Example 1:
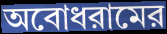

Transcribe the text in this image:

অবোধরামের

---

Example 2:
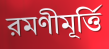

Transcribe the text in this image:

রমণীমূর্ত্তি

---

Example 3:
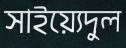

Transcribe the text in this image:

সাইয়্যেদুল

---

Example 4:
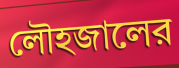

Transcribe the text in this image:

লৌহজালের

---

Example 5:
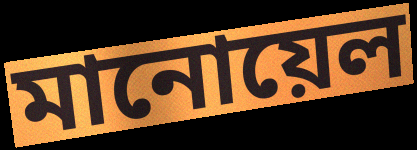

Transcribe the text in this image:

মানোয়েল